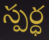
స్పర్ధ